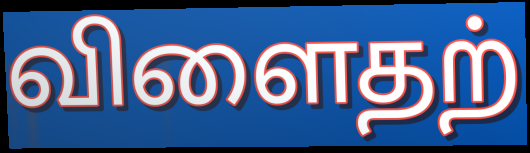
விளைதற்